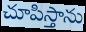
చూపిస్తాను